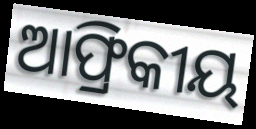
ଆଫ୍ରିକୀୟ